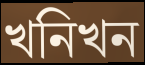
খনিখন